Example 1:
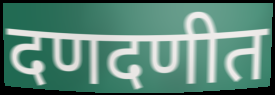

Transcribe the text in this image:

दणदणीत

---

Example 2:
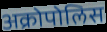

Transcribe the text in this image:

अक्रोपोलिस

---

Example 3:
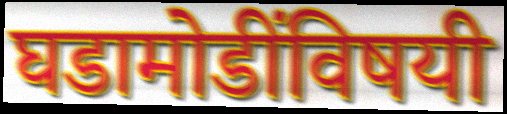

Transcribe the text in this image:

घडामोडींविषयी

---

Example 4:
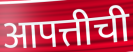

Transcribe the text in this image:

आपत्तीची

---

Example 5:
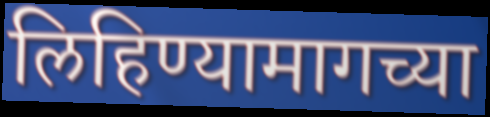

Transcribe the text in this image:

लिहिण्यामागच्या